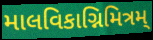
માલવિકાગ્નિમિત્રમ્